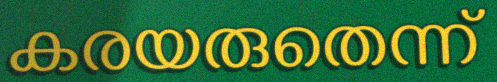
കരയരുതെന്ന്